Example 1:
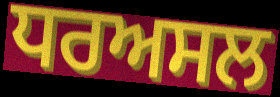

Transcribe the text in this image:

ਧਰਅਸਲ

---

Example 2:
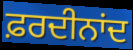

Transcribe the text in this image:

ਫ਼ਰਦੀਨਾਂਦ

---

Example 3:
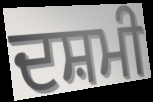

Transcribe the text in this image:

ਦਸ਼ਮੀ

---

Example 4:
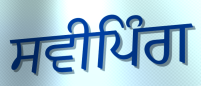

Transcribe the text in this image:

ਸਵੀਪਿੰਗ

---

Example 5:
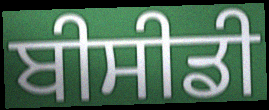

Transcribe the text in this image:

ਬੀਸੀਡੀ